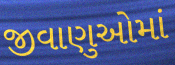
જીવાણુઓમાં